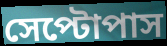
সেপ্টোপাস